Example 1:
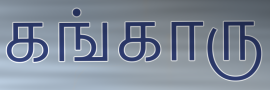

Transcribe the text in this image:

கங்காரு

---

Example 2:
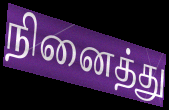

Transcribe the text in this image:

நினைத்து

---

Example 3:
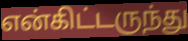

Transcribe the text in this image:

என்கிட்டருந்து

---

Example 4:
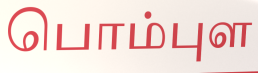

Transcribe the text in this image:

பொம்புள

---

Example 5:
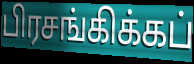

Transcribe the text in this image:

பிரசங்கிக்கப்